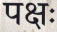
पक्षः